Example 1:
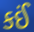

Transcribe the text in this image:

કઈં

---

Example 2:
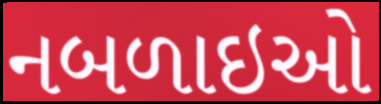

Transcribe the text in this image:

નબળાઇઓ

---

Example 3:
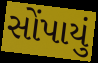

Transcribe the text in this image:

સોંપાયું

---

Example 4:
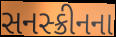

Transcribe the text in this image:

સનસ્ક્રીનના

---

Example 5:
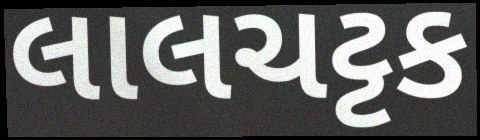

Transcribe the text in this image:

લાલચટ્ટક